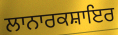
ਲਾਨਾਰਕਸ਼ਾਇਰ